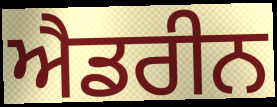
ਐਡਰੀਨ